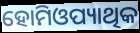
ହୋମିଓପ୍ୟାଥିକ